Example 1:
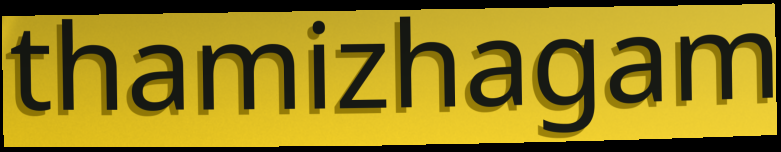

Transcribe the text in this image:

thamizhagam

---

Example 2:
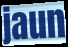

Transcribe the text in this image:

jaun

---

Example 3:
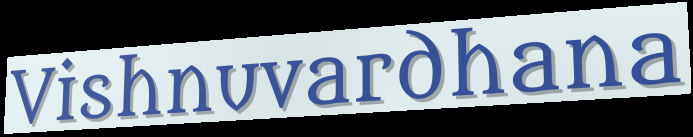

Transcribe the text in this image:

Vishnuvardhana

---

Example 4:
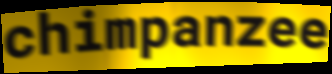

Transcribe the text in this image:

chimpanzee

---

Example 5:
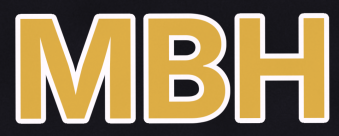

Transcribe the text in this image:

MBH